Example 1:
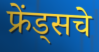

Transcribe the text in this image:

फ्रेंड्सचे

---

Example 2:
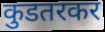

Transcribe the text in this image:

कुडतरकर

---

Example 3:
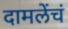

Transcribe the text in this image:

दामलेंचं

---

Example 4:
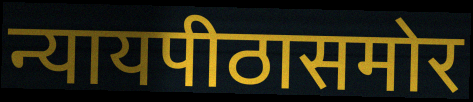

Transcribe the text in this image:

न्यायपीठासमोर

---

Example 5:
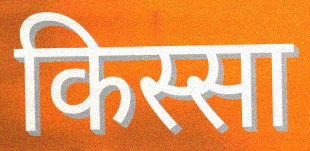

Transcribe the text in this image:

किस्सा